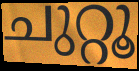
ചുറ്റൂ